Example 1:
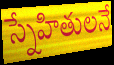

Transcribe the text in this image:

స్నేహితులనే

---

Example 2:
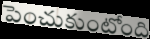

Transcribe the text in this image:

పెంచుకుంటోంది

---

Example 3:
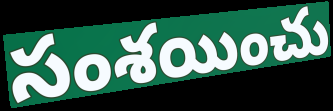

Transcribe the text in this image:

సంశయించు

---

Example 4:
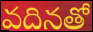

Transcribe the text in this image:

వదినతో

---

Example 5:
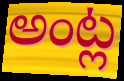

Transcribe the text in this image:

అంట్ల